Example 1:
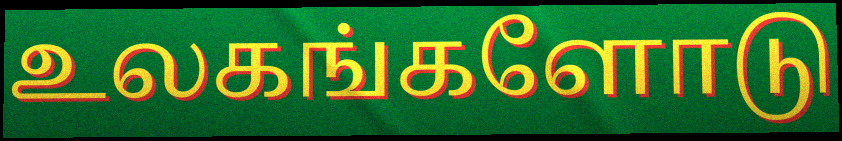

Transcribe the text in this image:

உலகங்களோடு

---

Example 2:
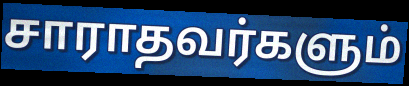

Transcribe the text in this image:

சாராதவர்களும்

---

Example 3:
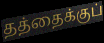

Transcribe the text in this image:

தத்தைக்குப்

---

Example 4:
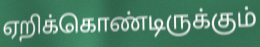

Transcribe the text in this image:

ஏறிக்கொண்டிருக்கும்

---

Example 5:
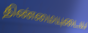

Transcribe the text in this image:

திண்மையுடைய